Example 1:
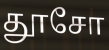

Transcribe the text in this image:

தூசோ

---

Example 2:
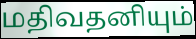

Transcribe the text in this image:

மதிவதனியும்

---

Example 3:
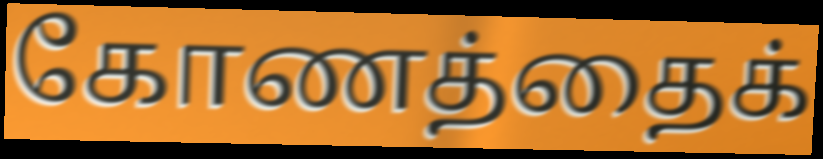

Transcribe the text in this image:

கோணத்தைக்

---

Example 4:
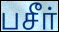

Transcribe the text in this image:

பசீர்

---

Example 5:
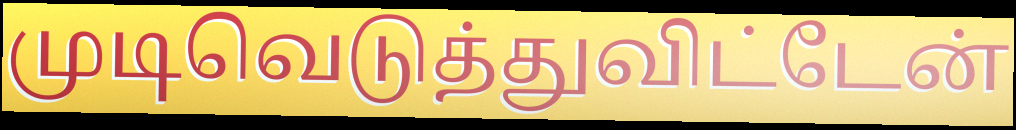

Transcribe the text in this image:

முடிவெடுத்துவிட்டேன்